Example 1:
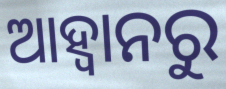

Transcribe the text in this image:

ଆହ୍ବାନରୁ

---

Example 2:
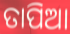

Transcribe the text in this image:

ତାପିଆ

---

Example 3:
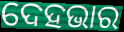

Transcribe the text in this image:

ଦେହଭାର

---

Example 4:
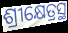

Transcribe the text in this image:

ଶ୍ରୀକ୍ଷେତ୍ରସ୍ଥ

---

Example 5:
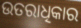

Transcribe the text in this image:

ଉତରାଧିକାର